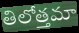
తిలోత్తమా